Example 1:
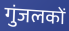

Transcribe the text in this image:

गुंजलकों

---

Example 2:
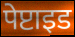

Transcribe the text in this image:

पेप्टाइड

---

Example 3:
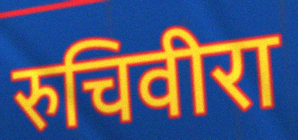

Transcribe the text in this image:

रुचिवीरा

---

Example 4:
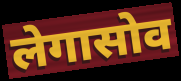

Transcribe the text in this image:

लेगासोव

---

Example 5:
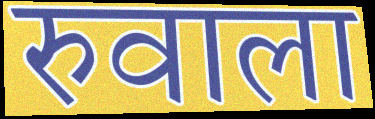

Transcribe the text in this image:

रुवाला